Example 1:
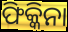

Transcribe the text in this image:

ଫିକ୍କିନା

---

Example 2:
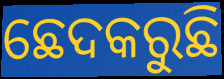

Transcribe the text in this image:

ଛେଦକରୁଛି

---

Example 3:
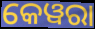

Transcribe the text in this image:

କେୱରା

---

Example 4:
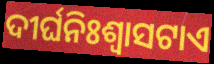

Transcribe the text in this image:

ଦୀର୍ଘନିଃଶ୍ୱାସଟାଏ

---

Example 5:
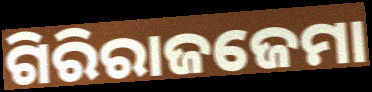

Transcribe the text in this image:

ଗିରିରାଜଜେମା